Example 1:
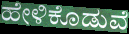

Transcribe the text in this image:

ಹೇಳಿಕೊಡುವೆ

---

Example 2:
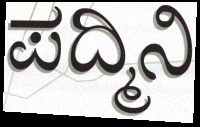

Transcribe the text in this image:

ಪದ್ಮಿನಿ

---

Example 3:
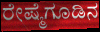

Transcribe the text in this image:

ರೇಷ್ಮೆಗೂಡಿನ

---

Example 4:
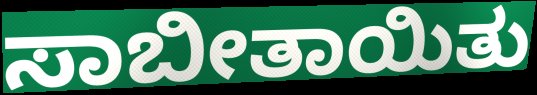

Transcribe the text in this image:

ಸಾಬೀತಾಯಿತು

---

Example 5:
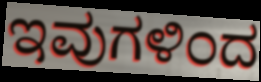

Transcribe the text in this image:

ಇವುಗಳಿಂದ